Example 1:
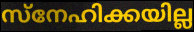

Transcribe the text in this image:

സ്നേഹിക്കയില്ല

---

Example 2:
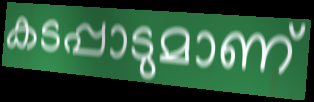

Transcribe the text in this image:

കടപ്പാടുമാണ്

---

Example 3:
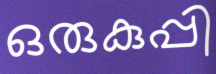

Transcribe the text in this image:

ഒരുകുപ്പി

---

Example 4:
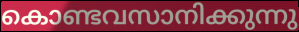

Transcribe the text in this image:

കൊണ്ടവസാനിക്കുന്നു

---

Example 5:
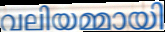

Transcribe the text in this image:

വലിയമ്മായി